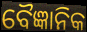
ବୈଜ୍ଞାନିକ